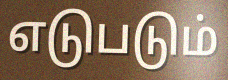
எடுபடும்